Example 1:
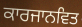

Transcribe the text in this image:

ਕਾਰਜਾਨਵਿਤ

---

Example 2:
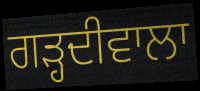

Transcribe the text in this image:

ਗਡ਼੍ਹਦੀਵਾਲਾ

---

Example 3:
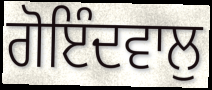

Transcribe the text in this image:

ਗੋਇੰਦਵਾਲੁ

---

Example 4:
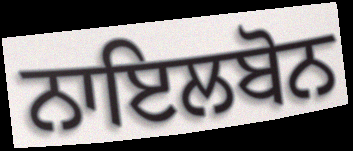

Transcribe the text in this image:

ਨਾਇਲਬੋਨ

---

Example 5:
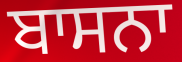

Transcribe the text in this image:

ਬਾਸਨਾ